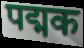
पद्मक